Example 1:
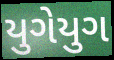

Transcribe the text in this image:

યુગેયુગ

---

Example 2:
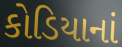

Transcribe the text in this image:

કોડિયાનાં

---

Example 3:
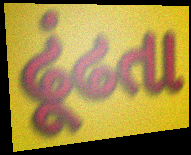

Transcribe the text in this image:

ઢૂંઢતા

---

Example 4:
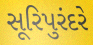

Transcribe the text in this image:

સૂરિપુરંદરે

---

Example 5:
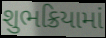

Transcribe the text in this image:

શુભક્રિયામાં